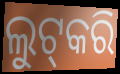
ଲୁଟ୍‍କରି